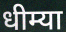
धीम्या